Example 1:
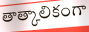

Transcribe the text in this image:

తాత్కాలికంగా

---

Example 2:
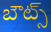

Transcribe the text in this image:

బౌట్స్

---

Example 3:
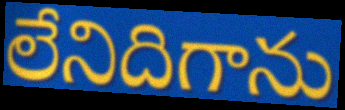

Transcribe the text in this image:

లేనిదిగాను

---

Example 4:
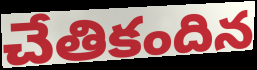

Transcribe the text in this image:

చేతికందిన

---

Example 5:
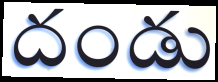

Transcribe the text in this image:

దండు